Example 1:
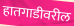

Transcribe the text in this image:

हातगाडीवरील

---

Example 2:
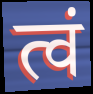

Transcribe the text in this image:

त्वं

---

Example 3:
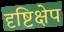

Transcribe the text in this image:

दृष्टिक्षेप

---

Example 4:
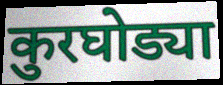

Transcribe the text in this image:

कुरघोड्या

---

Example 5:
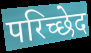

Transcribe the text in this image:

परिच्छेद